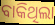
ବାକିଥିଲା